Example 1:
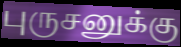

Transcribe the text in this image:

புருசனுக்கு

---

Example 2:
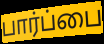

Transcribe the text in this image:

பார்ப்பை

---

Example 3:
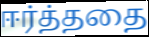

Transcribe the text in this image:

ஈர்த்ததை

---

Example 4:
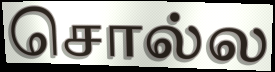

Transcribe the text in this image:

சொல்ல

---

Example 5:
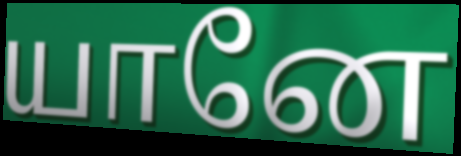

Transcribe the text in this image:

யானே